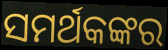
ସମର୍ଥକଙ୍କର